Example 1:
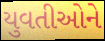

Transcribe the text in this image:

યુવતીઓને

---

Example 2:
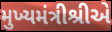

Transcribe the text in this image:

મુખ્યમંત્રીશ્રીએ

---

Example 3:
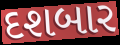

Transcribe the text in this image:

દશબાર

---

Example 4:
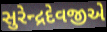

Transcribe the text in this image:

સુરેન્દ્રદેવજીએ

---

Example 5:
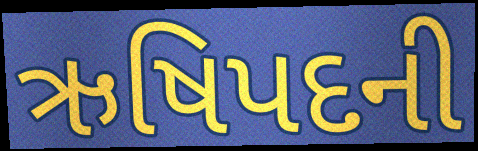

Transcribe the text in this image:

ઋષિપદની